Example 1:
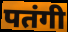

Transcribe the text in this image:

पतंगी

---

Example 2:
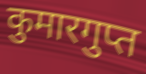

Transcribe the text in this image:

कुमारगुप्त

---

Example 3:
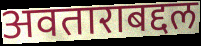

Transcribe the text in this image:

अवताराबद्दल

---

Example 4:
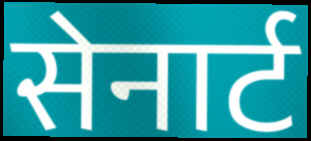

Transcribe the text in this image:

सेनार्ट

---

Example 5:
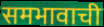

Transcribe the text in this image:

समभावाची